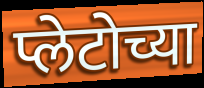
प्लेटोच्या